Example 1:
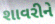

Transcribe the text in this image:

શાવરીને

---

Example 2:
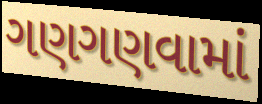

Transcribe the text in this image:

ગણગણવામાં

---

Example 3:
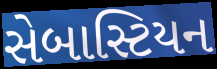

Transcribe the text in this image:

સેબાસ્ટિયન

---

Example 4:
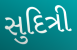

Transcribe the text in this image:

સુદિત્રી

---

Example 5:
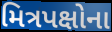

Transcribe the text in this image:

મિત્રપક્ષોના